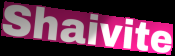
Shaivite